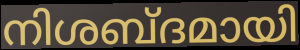
നിശബ്ദമായി